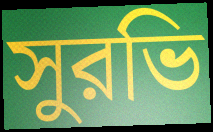
সুরভি